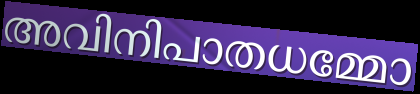
അവിനിപാതധമ്മോ